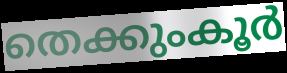
തെക്കുംകൂർ